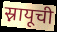
स्नायूची